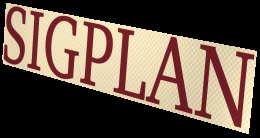
SIGPLAN